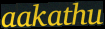
aakathu